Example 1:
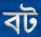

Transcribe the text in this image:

বট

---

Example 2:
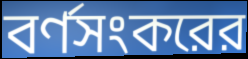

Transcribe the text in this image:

বর্ণসংকরের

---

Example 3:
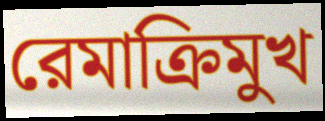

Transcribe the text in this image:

রেমাক্রিমুখ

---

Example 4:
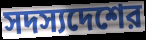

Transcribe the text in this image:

সদস্যদেশের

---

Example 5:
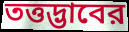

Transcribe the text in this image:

তত্তদ্ভাবের